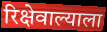
रिक्षेवाल्याला